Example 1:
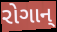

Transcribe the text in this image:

રોગાન્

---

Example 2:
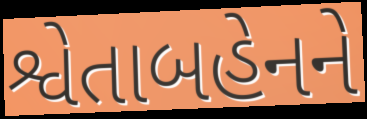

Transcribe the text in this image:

શ્વેતાબહેનને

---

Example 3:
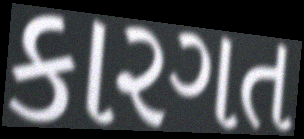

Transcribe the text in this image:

કારગત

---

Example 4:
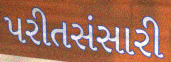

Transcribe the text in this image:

પરીતસંસારી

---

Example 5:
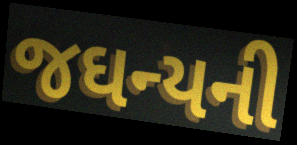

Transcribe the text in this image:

જઘન્યની